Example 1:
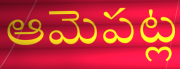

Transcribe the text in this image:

ఆమెపట్ల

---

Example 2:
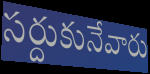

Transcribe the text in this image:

సర్దుకునేవారు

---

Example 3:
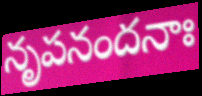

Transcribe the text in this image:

నృపనందనాః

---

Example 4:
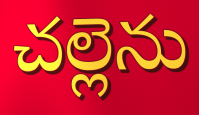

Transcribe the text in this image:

చల్లెను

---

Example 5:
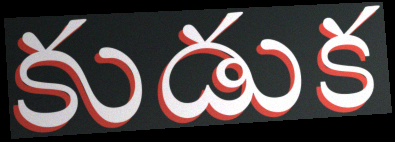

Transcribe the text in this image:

కుడుక